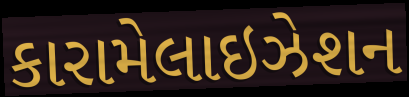
કારામેલાઇઝેશન